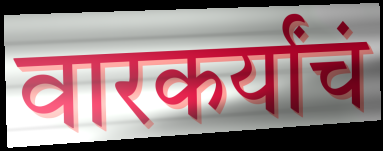
वारकर्यांचं